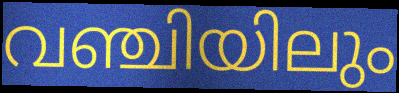
വഞ്ചിയിലും